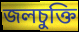
জলচুক্তি